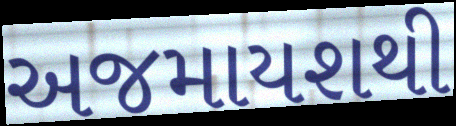
અજમાયશથી